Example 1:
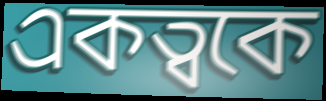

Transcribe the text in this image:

একত্বকে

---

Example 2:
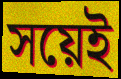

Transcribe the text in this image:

সয়েই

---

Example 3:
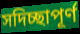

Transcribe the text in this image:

সদিচ্ছাপূর্ণ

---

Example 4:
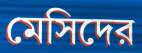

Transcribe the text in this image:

মেসিদের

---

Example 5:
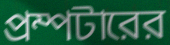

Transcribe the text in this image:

প্রম্পটারের